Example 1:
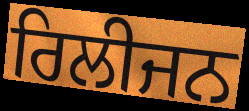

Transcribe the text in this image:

ਰਿਲੀਜਨ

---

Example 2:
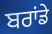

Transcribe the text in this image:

ਬਰਾਂਡੇ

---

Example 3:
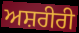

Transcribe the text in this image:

ਅਸ਼ਰੀਰੀ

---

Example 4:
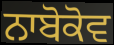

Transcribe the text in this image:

ਨਾਬੋਕੋਵ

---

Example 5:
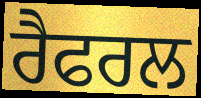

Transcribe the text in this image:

ਰੈਫਰਲ